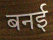
बनई